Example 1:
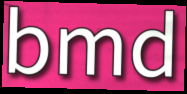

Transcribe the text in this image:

bmd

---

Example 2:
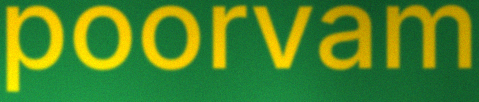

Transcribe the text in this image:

poorvam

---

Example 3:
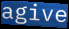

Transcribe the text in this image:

agive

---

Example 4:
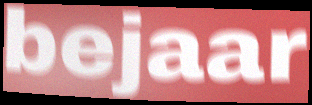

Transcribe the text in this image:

bejaar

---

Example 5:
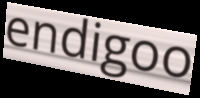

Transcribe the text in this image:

endigoo